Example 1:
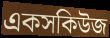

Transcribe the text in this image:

একসকিউজ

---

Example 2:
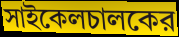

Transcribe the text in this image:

সাইকেলচালকের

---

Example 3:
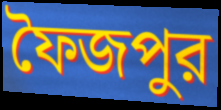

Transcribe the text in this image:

ফৈজপুর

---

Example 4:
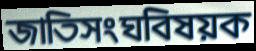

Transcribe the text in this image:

জাতিসংঘবিষয়ক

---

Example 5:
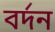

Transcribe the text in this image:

বর্দন